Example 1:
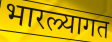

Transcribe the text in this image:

भारल्यागत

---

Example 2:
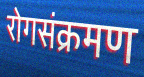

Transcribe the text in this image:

रोगसंक्रमण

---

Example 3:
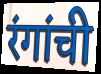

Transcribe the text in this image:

रंगांची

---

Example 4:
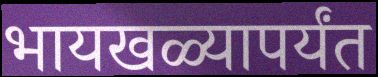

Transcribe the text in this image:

भायखळ्यापर्यंत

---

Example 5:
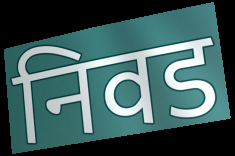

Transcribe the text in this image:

निवड